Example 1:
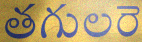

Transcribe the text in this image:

తగులరె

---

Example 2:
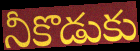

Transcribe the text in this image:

నీకొడుకు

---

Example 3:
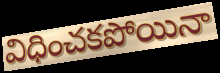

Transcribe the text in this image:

విధించకపోయినా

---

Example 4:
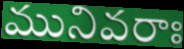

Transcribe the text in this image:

మునివరాః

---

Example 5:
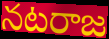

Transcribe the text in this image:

నటరాజ